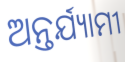
ଅନ୍ତର୍ଯ୍ୟାମୀ